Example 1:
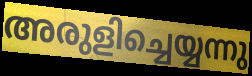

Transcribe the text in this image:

അരുളിച്ചെയ്യന്നു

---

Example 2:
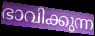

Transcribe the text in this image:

ഭാവിക്കുന്ന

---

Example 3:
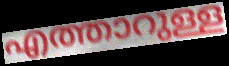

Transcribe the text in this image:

എത്താറുള്ള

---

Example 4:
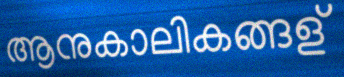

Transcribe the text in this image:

ആനുകാലികങ്ങള്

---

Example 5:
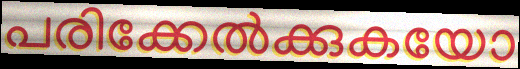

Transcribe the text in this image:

പരിക്കേൽക്കുകയോ